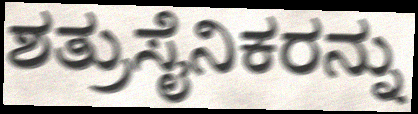
ಶತ್ರುಸೈನಿಕರನ್ನು